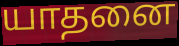
யாதனை